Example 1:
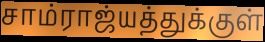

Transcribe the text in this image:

சாம்ராஜ்யத்துக்குள்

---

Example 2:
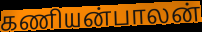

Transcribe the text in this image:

கணியன்பாலன்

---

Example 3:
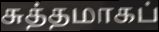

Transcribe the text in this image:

சுத்தமாகப்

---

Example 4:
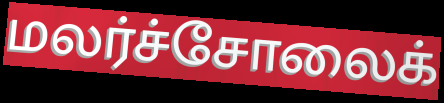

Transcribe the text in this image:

மலர்ச்சோலைக்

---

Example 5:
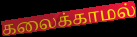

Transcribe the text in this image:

கலைக்காமல்